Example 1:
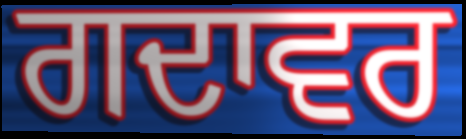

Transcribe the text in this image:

ਗਦਾਵਰ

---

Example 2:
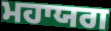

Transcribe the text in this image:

ਮਹਾਯਗ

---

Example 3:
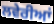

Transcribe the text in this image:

ਲਵੇਰੀਆਂ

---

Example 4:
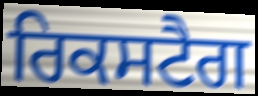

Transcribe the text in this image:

ਰਿਕਸਟੈਗ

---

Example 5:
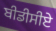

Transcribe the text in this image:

ਬੀਡੀਸੀਏ